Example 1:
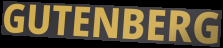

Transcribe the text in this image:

GUTENBERG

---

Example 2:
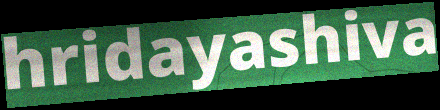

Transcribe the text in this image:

hridayashiva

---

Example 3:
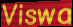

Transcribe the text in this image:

Viswa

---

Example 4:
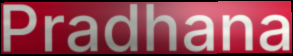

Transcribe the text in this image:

Pradhana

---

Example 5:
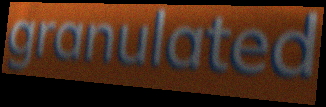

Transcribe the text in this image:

granulated